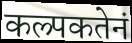
कल्पकतेनं